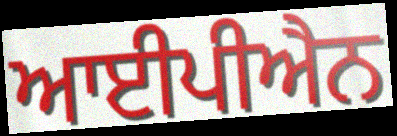
ਆਈਪੀਐਨ